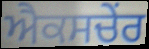
ਐਕਸਚੇਂਰ